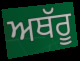
ਅਥੱਰੂ